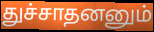
துச்சாதனனும்